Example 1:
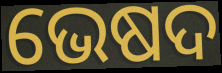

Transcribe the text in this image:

ଭେଷଦ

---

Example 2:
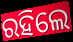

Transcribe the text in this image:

ରହିଲେ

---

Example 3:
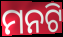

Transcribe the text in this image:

ମନଟି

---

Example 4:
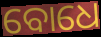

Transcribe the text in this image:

ବୋଧେ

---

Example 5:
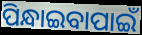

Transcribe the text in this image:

ପିନ୍ଧାଇବାପାଇଁ